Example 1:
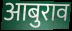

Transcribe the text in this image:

आबुराव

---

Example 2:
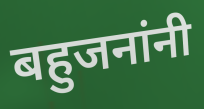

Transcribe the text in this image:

बहुजनांनी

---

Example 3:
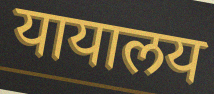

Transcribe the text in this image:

यायालय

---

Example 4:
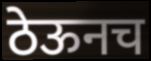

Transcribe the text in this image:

ठेऊनच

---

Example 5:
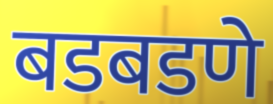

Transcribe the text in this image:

बडबडणे